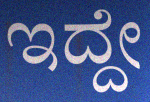
ಇದ್ದೇ